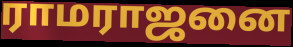
ராமராஜனை